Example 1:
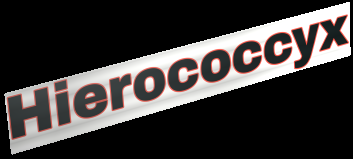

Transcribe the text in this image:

Hierococcyx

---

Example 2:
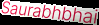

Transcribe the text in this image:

Saurabhbhai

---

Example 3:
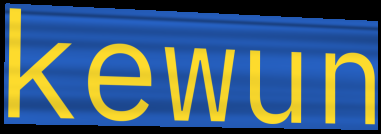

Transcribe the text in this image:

kewun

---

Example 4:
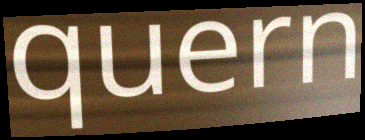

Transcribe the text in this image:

quern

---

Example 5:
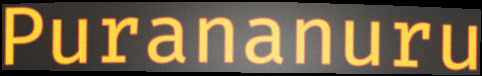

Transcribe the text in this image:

Purananuru